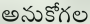
అనుకోగల